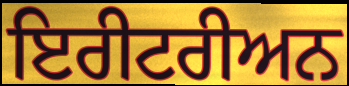
ਇਰੀਟਰੀਅਨ